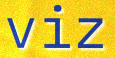
viz